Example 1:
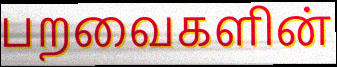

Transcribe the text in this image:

பறவைகளின்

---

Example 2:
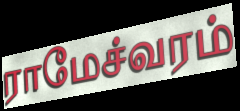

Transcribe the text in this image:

ராமேச்வரம்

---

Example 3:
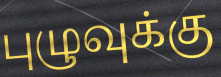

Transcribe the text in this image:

புழுவுக்கு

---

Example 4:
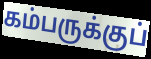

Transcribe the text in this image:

கம்பருக்குப்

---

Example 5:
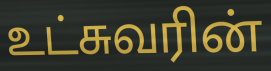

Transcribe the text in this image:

உட்சுவரின்